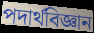
পদাৰ্থবিজ্ঞান